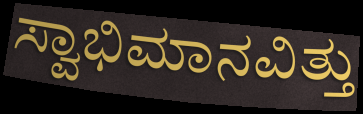
ಸ್ವಾಭಿಮಾನವಿತ್ತು